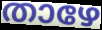
താഴേ